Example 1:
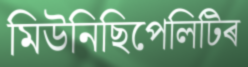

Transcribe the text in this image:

মিউনিছিপেলিটিৰ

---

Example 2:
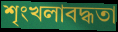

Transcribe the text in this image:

শৃংখলাবদ্ধতা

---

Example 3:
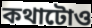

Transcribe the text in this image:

কথাটোও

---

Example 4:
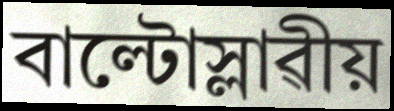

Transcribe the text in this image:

বাল্টোস্লাৱীয়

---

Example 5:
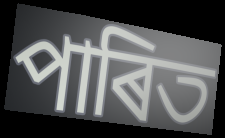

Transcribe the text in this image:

পাৰিত